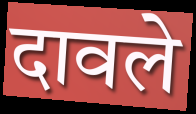
दावले